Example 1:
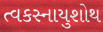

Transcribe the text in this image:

ત્વકસ્નાયુશોથ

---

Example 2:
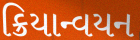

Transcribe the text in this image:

ક્રિયાન્વયન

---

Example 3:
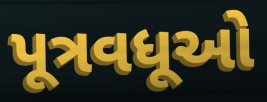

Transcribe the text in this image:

પૂત્રવધૂઓ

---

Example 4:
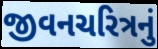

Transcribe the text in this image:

જીવનચરિત્રનું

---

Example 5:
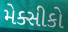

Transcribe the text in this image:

મેક્સીકો